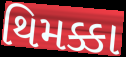
થિમક્કા